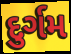
દુર્ગમ